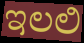
ಇಲಲಿ